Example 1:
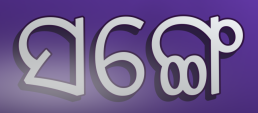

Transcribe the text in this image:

ସଙ୍ଗେ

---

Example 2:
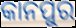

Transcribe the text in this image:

କାନପୁର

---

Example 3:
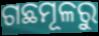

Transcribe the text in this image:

ଗଛମୂଳରୁ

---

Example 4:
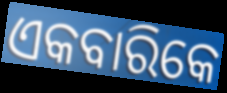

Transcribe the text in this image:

ଏକବାରିକେ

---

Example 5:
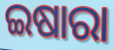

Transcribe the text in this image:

ଇଷାରା